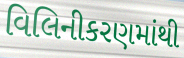
વિલિનીકરણમાંથી